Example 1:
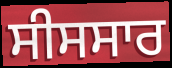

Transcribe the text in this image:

ਸੀਸਸਾਰ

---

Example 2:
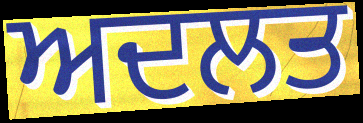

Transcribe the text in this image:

ਅਦਲਤ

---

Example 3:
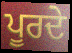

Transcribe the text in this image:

ਪੂਰਦੇ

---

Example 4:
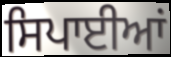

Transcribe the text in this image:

ਸਿਪਾਈਆਂ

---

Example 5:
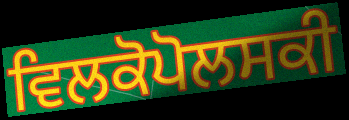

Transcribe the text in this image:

ਵਿਲਕੋਪੋਲਸਕੀ